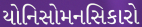
યોનિસોમનસિકારો